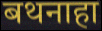
बथनाहा